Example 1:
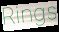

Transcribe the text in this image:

Rings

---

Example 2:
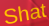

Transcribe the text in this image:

Shat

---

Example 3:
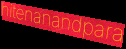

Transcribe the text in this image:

hitenanandpara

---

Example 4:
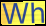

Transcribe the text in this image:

Wh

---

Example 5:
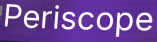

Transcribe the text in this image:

Periscope